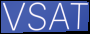
VSAT